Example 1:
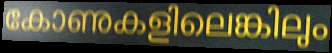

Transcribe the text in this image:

കോണുകളിലെങ്കിലും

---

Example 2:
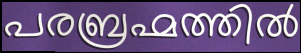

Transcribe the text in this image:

പരബ്രഹ്മത്തിൽ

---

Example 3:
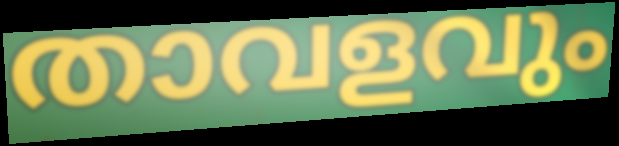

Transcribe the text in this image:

താവളവും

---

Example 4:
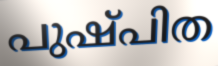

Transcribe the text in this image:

പുഷ്പിത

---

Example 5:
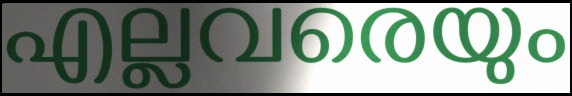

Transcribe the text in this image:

എല്ലവരെയും